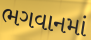
ભગવાનમાં